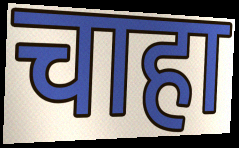
चाहा